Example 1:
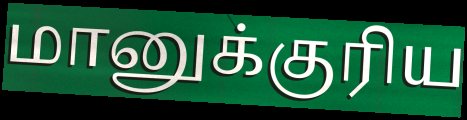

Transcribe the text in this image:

மானுக்குரிய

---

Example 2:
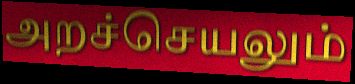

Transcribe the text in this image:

அறச்செயலும்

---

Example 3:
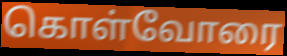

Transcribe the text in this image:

கொள்வோரை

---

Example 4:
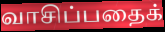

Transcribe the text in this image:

வாசிப்பதைக்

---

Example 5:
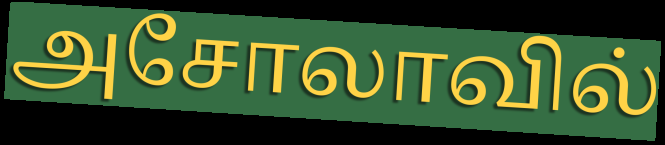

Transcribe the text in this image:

அசோலாவில்